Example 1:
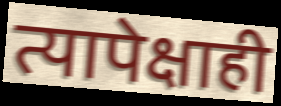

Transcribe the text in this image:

त्यापेक्षाही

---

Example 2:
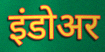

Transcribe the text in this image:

इंडोअर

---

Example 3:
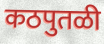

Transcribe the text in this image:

कठपुतळी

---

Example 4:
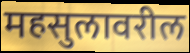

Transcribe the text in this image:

महसुलावरील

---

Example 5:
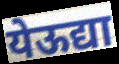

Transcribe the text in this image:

येऊद्या